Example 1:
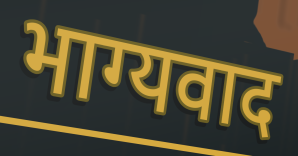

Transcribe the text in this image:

भाग्यवाद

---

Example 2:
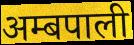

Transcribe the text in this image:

अम्बपाली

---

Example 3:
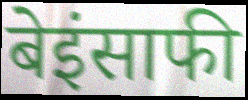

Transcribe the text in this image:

बेइंसाफी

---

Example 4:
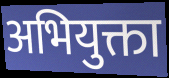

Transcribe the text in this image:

अभियुक्ता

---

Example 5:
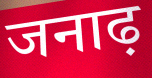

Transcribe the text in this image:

जनाढ़